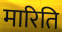
मारिति